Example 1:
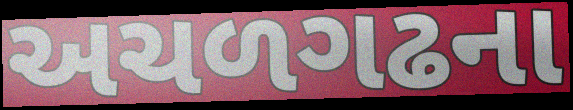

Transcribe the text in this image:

અચળગઢના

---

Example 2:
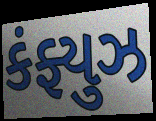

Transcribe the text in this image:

કંફ્યુઝ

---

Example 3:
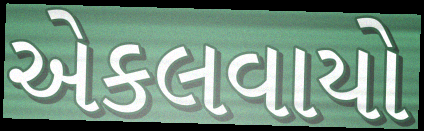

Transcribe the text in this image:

એકલવાયો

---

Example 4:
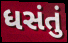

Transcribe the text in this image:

ધસંતું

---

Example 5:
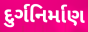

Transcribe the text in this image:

દુર્ગનિર્માણ